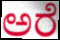
ಅರೆ